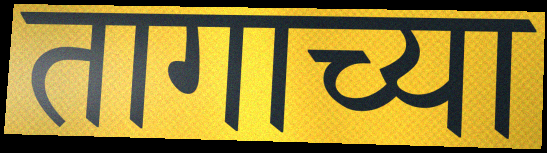
तागाच्या